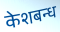
केशबन्ध